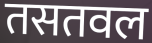
तसतवल